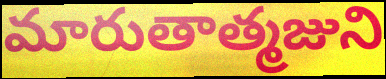
మారుతాత్మజుని